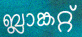
ബ്ലാങ്കറ്റ്